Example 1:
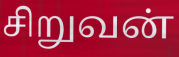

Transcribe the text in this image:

சிறுவன்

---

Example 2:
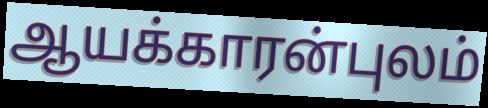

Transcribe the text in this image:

ஆயக்காரன்புலம்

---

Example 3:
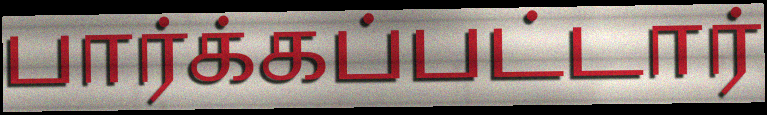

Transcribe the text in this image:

பார்க்கப்பட்டார்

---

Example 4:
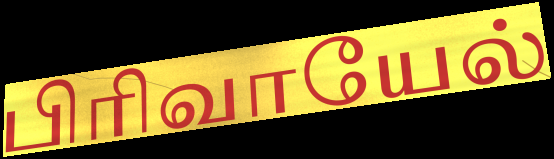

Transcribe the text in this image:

பிரிவாயேல்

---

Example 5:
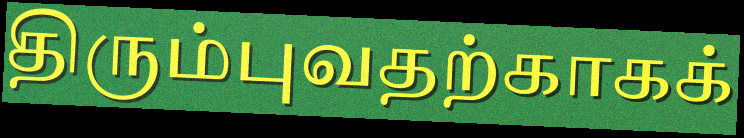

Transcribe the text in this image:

திரும்புவதற்காகக்